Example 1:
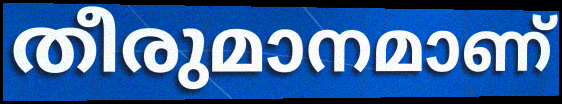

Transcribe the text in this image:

തീരുമാനമാണ്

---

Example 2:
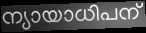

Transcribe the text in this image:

ന്യായാധിപന്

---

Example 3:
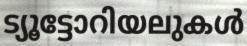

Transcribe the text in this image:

ട്യൂട്ടോറിയലുകൾ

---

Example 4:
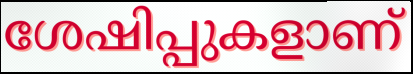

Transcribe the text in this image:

ശേഷിപ്പുകളാണ്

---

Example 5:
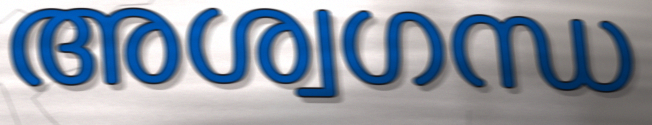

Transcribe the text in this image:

അശ്വഗന്ധ